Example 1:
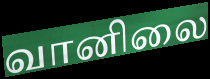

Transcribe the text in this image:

வானிலை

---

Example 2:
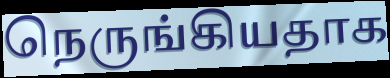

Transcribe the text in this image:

நெருங்கியதாக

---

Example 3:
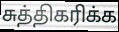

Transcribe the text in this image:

சுத்திகரிக்க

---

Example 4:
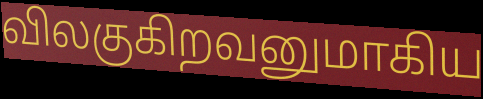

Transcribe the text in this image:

விலகுகிறவனுமாகிய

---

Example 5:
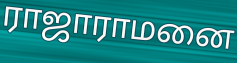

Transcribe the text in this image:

ராஜாராமனை